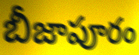
బీజాపూరం